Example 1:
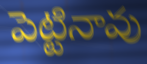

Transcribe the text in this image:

పెట్టినావు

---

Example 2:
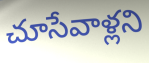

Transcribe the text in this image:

చూసేవాళ్లని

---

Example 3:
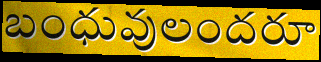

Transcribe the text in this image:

బంధువులందరూ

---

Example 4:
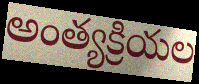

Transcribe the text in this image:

అంత్యక్రియల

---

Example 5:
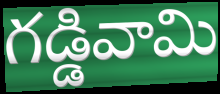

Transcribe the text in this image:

గడ్డివామి